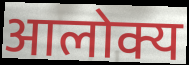
आलोक्य